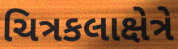
ચિત્રકલાક્ષેત્રે